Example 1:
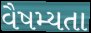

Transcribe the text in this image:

વૈષમ્યતા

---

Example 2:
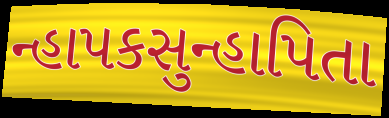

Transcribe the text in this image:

ન્હાપકસુન્હાપિતા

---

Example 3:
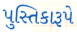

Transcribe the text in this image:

પુસ્તિકારૂપે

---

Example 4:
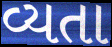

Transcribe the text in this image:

વ્યતા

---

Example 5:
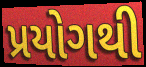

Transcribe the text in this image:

પ્રયોગથી